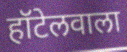
हॉटेलवाला